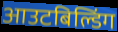
आउटबिल्डिंग